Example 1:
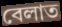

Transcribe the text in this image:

বেলাত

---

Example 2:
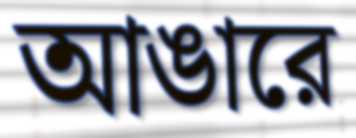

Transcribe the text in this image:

আঙারে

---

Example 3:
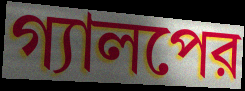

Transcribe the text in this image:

গ্যালপের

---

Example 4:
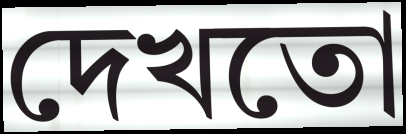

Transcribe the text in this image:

দেখতো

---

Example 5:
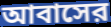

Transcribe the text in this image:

আবাসের